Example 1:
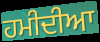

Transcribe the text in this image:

ਹਮੀਦੀਆ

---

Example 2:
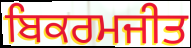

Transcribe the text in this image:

ਬਿਕਰਮਜੀਤ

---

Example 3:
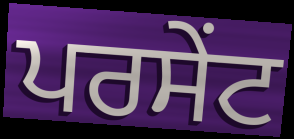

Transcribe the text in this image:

ਪਰਸੇੰਟ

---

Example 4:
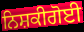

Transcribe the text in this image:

ਨਿਸ਼ਕੀਗੋਈ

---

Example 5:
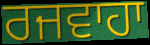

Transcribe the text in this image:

ਰਜਵਾਹਾ